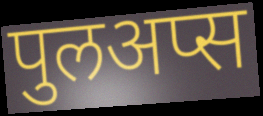
पुलअप्स